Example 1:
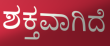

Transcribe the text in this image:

ಶಕ್ತವಾಗಿದೆ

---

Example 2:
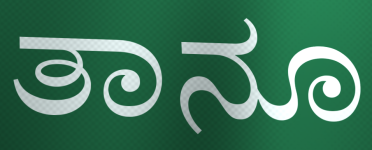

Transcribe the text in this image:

ತಾನೂ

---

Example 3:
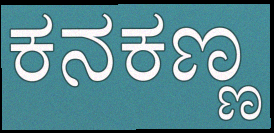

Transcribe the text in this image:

ಕನಕಣ್ಣ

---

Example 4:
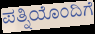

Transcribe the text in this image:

ಪತ್ನಿಯೊಂದಿಗೆ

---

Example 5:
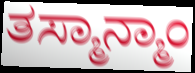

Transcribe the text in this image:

ತಸ್ಮಾನ್ಮಾಂ